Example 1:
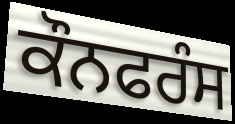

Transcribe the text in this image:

ਕੌਨਫਰੰਸ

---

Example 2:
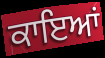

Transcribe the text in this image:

ਕਾਇਆਂ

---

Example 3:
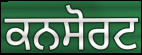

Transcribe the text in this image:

ਕਨਸੋਰਟ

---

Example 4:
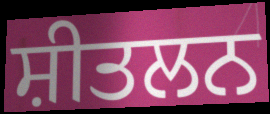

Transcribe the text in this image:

ਸ਼ੀਤਲਨ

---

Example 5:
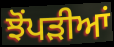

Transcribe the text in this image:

ਝੋਂਪੜੀਆਂ